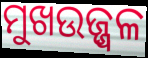
ମୁଖଉଜ୍ଜ୍ୱଳ